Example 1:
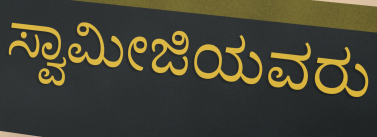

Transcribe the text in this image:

ಸ್ವಾಮೀಜಿಯವರು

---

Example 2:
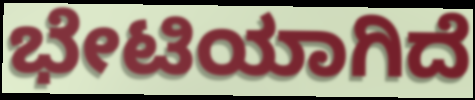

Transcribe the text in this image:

ಭೇಟಿಯಾಗಿದೆ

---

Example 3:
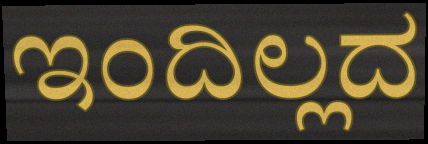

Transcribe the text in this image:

ಇಂದಿಲ್ಲದ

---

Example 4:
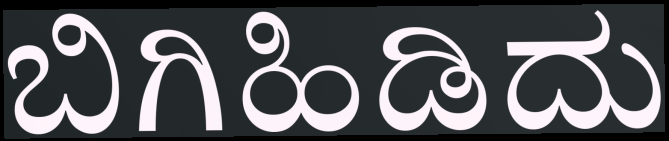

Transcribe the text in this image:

ಬಿಗಿಹಿಡಿದು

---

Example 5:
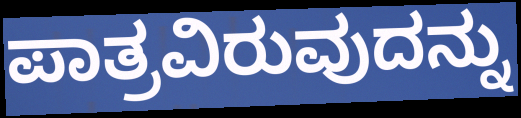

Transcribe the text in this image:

ಪಾತ್ರವಿರುವುದನ್ನು